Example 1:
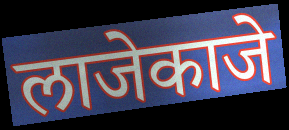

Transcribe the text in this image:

लाजेकाजे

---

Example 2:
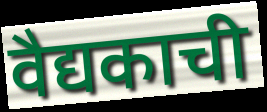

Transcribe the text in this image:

वैद्यकाची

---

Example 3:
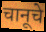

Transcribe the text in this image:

चानूचे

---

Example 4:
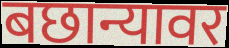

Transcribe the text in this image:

बछान्यावर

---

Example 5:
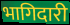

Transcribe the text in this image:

भागिदारी